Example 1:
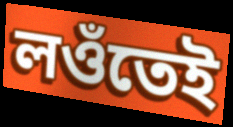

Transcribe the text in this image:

লওঁতেই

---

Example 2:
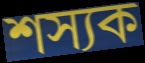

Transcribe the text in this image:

শস্যক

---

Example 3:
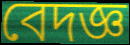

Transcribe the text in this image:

বেদজ্ঞ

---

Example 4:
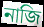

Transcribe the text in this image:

নাজি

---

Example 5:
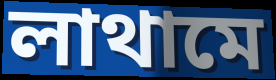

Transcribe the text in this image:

লাথামে